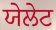
ਯੇਲੇਟ